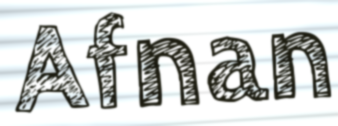
Afnan